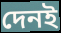
দেনই